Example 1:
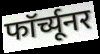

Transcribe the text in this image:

फॉर्च्यूनर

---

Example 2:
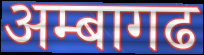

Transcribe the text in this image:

अम्बागढ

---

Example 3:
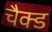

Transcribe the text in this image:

चैक्ड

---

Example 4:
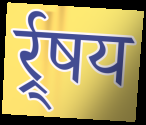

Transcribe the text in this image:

र्र्र्षय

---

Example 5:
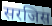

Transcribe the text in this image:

सरजिस